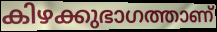
കിഴക്കുഭാഗത്താണ്